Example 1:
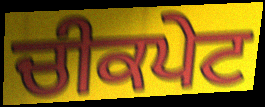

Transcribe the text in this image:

ਚੀਕਪੇਟ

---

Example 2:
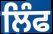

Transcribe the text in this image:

ਲਿੰਫ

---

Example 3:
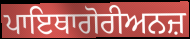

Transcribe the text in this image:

ਪਾਇਥਾਗੋਰੀਅਨਜ਼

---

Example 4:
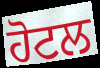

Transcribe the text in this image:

ਹੋਟਲ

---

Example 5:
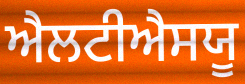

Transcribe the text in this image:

ਐਲਟੀਐਸਯੂ